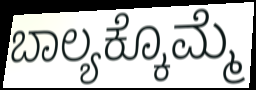
ಬಾಲ್ಯಕ್ಕೊಮ್ಮೆ